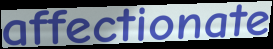
affectionate